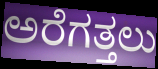
ಅರೆಗತ್ತಲು